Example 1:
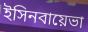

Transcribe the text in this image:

ইসিনবায়েভা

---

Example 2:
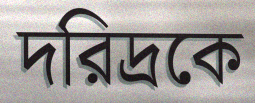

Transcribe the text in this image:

দরিদ্রকে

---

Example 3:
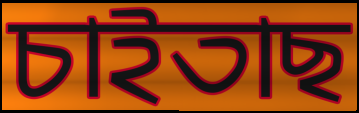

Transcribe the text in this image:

চাইতাছ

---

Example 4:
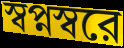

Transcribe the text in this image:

স্বপ্নস্বরে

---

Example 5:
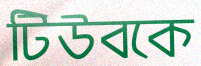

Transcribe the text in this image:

টিউবকে